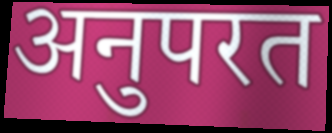
अनुपरत